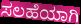
ಸಲಹೆಯಾಗಿ